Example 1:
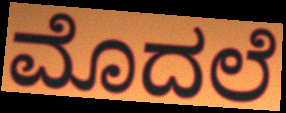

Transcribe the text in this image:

ಮೊದಲೆ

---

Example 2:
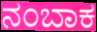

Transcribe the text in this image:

ನಂಬಾಕ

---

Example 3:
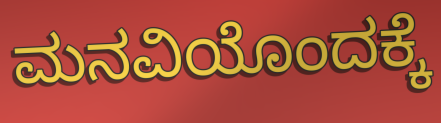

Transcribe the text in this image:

ಮನವಿಯೊಂದಕ್ಕೆ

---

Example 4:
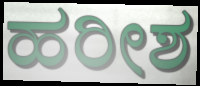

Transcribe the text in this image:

ಹರೀಶ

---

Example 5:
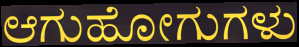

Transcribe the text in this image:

ಆಗುಹೋಗುಗಳು